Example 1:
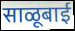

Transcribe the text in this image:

साळूबाई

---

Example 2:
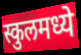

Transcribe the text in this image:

स्कुलमध्ये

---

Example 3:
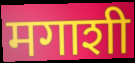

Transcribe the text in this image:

मगाशी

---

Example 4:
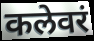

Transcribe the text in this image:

कलेवरं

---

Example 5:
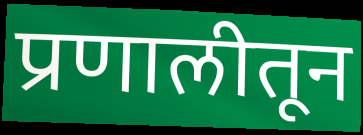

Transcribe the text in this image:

प्रणालीतून